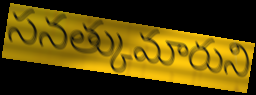
సనత్కుమారుని